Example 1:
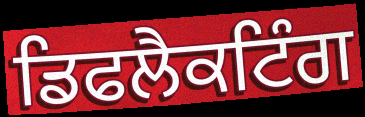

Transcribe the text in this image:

ਡਿਫਲੈਕਟਿੰਗ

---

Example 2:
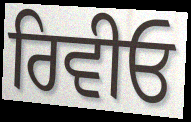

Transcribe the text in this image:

ਰਿਵੀਓ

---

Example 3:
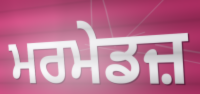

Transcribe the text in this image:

ਮਰਮੇਡਜ਼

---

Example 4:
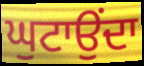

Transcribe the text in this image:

ਘੁਟਾਉਂਦਾ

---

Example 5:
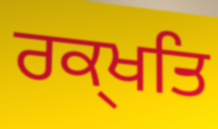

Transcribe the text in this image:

ਰਕ੍ਖਤਿ